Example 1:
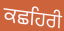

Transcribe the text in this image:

ਕਛਹਿਰੀ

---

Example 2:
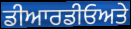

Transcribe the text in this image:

ਡੀਆਰਡੀਓਅਤੇ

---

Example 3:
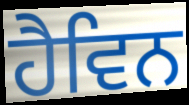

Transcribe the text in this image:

ਹੈਵਿਨ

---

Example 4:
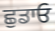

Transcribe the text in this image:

ਛੁਡਾਓ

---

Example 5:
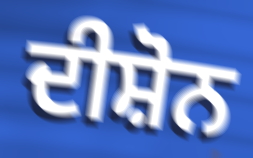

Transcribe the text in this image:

ਦੀਸ਼ੋਨ